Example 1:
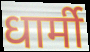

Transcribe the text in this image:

धार्मी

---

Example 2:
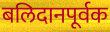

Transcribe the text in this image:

बलिदानपूर्वक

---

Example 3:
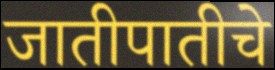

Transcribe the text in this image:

जातीपातीचे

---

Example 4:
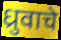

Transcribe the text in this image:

ध्रुवाचे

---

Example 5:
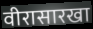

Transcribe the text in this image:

वीरासारखा